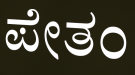
ಪೇತಂ